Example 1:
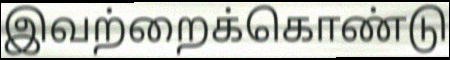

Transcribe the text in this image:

இவற்றைக்கொண்டு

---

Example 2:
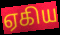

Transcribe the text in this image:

ஏகிய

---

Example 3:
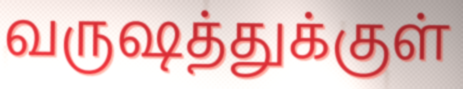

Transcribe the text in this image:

வருஷத்துக்குள்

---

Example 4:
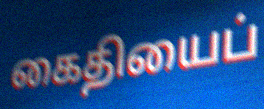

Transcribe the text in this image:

கைதியைப்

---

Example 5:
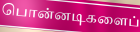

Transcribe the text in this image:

பொன்னடிகளைப்